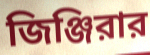
জিঞ্জিরার